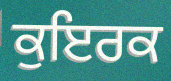
ਕੁਇਰਕ